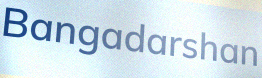
Bangadarshan